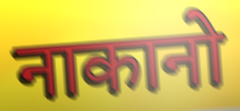
नाकानो